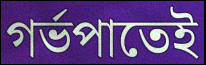
গৰ্ভপাতেই